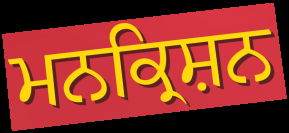
ਮਨਕ੍ਰਿਸ਼ਨ